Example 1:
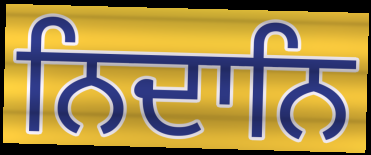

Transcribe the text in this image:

ਨਿਦਾਨਿ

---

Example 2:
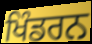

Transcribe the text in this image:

ਖਿੰਡਰਨ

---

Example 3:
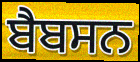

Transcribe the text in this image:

ਬੈਬਸਨ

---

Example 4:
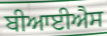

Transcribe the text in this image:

ਬੀਆਈਐਸ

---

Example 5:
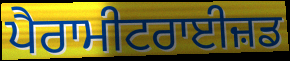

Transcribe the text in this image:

ਪੈਰਾਮੀਟਰਾਈਜ਼ਡ